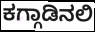
ಕಗ್ಗಾಡಿನಲಿ